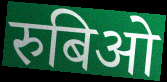
रुबिओ